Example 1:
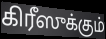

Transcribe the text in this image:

கிரீஸுக்கும்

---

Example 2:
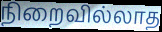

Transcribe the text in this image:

நிறைவில்லாத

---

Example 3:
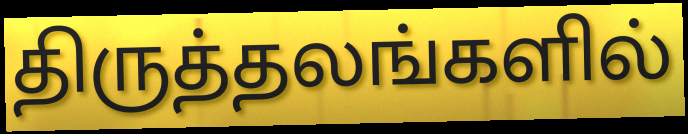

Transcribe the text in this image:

திருத்தலங்களில்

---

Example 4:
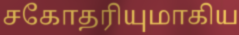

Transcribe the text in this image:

சகோதரியுமாகிய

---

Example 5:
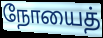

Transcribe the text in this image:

நோயைத்